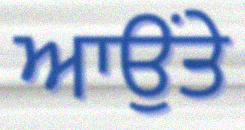
ਆਉਂਤੇ